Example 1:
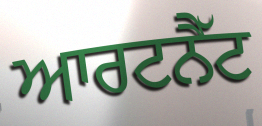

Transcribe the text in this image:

ਆਰਟਨੈੱਟ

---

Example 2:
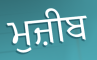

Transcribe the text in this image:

ਮੁਜ਼ੀਬ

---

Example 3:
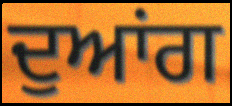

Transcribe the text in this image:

ਦੁਆਂਗ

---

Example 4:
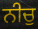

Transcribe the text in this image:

ਨੀਚੁ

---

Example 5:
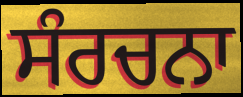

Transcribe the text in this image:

ਸੰਰਚਨਾ